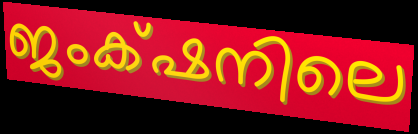
ജംക്‌ഷനിലെ